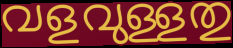
വളവുള്ളതു